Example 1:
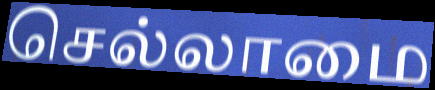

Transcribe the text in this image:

செல்லாமை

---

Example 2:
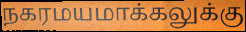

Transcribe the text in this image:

நகரமயமாக்கலுக்கு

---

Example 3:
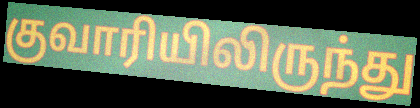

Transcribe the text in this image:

குவாரியிலிருந்து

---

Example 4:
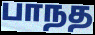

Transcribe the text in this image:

பாநத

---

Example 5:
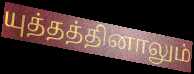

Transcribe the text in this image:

யுத்தத்தினாலும்